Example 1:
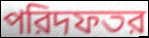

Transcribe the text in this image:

পরিদফতর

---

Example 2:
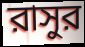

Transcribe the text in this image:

রাসুর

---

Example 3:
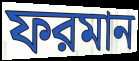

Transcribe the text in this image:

ফরমান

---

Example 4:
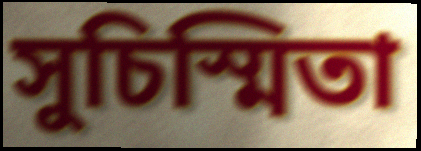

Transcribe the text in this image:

সুচিস্মিতা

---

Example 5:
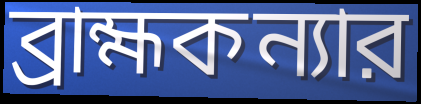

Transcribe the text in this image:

ব্রাহ্মকন্যার